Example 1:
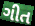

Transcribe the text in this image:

ગીત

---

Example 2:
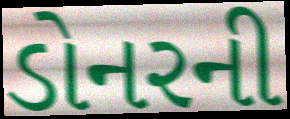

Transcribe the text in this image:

ડોનરની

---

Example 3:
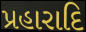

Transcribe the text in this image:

પ્રહારાદિ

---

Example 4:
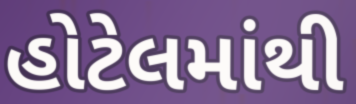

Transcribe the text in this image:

હોટેલમાંથી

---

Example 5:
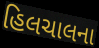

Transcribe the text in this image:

હિલચાલના